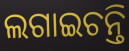
ଲଗାଇଚନ୍ତି